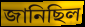
জানিছিল